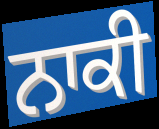
ਨਾਕੀ